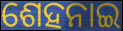
ଶେହନାଇ